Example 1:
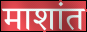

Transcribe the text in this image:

माशांत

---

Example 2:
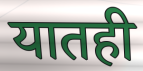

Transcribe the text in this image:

यातही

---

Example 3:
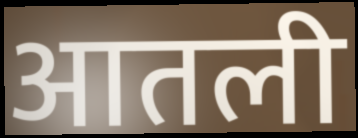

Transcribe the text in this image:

आतली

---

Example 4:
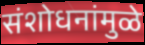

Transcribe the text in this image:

संशोधनांमुळे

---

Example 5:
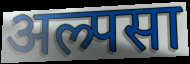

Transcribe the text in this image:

अल्पसा